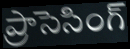
ప్రాసెసింగ్